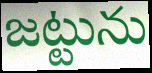
జట్టును